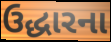
ઉદ્ધારના